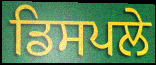
ਡਿਸਪਲੇ